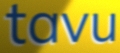
tavu